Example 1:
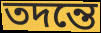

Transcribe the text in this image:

তদন্তে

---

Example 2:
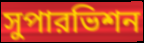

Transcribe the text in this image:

সুপারভিশন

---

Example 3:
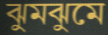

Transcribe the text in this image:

ঝুমঝুমে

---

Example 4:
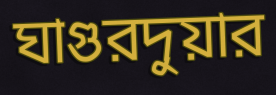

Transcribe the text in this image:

ঘাগুরদুয়ার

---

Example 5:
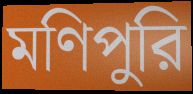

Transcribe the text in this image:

মণিপুরি